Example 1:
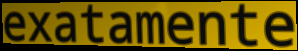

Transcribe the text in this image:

exatamente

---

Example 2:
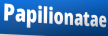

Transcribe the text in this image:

Papilionatae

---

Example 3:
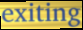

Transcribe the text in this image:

exiting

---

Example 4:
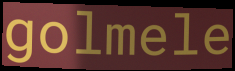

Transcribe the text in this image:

golmele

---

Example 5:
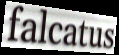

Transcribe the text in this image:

falcatus